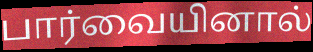
பார்வையினால்